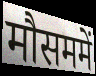
मौसममें